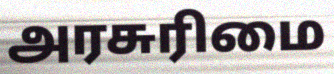
அரசுரிமை